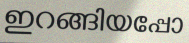
ഇറങ്ങിയപ്പോ